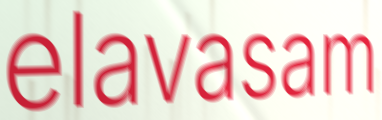
elavasam